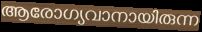
ആരോഗ്യവാനായിരുന്ന